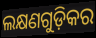
ଲକ୍ଷଣଗୁଡ଼ିକର